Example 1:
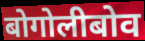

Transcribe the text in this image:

बोगोलीबोव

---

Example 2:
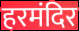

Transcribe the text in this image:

हरमंदिर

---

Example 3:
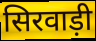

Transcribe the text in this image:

सिरवाड़ी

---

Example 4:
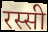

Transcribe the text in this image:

रस्सी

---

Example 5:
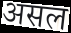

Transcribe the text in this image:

असल